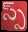
స్స్